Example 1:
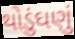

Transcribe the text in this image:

થોડુંઘણું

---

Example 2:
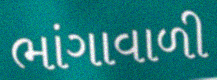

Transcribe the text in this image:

ભાંગાવાળી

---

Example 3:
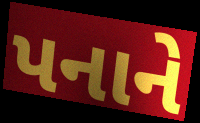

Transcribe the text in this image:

પનાને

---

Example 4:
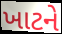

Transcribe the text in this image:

ખાટને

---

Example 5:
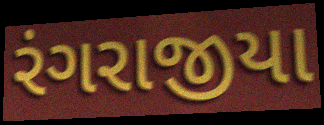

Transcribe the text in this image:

રંગરાજીયા